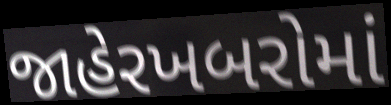
જાહેરખબરોમાં